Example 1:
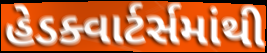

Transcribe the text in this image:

હેડક્વાર્ટર્સમાંથી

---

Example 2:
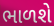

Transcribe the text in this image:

ભાળશે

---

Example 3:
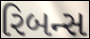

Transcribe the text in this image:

રિબન્સ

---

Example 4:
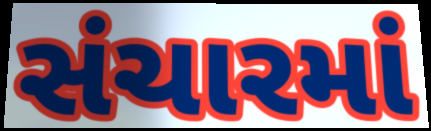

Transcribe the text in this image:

સંચારમાં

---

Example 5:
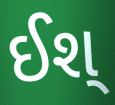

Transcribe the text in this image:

ઈશ્